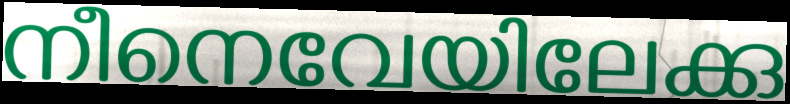
നീനെവേയിലേക്കു